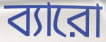
ব্যারো